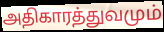
அதிகாரத்துவமும்